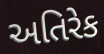
અતિરેક